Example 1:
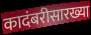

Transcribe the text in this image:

कादंबरीसारख्या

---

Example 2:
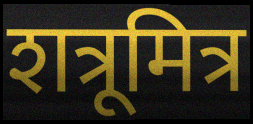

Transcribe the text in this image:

शत्रूमित्र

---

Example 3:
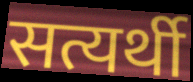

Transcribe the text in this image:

सत्यर्थी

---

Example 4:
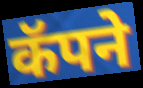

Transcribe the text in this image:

कॅपने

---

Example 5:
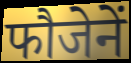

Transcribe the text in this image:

फौजेनें